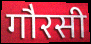
गौरसी